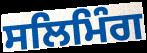
ਸਲਿਮਿੰਗ